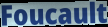
Foucault